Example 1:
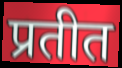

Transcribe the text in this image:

प्रतीत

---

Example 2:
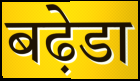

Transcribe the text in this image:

बढ़ेडा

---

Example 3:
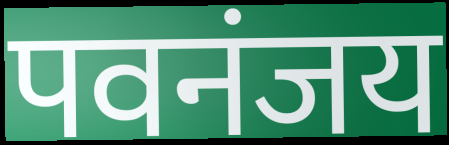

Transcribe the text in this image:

पवनंजय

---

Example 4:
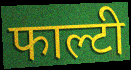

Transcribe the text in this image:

फाल्टी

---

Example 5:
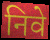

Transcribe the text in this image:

निवे